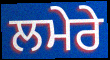
ਲਮੇਰੇ